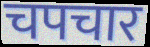
चपचार